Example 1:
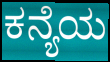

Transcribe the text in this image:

ಕನ್ಯೆಯ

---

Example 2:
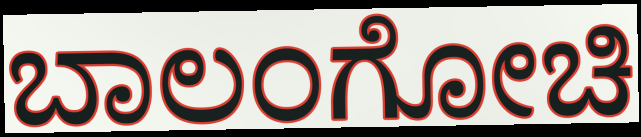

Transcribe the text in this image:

ಬಾಲಂಗೋಚಿ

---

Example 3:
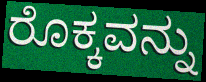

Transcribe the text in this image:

ರೊಕ್ಕವನ್ನು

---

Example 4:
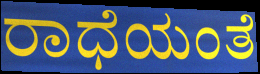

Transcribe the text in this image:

ರಾಧೆಯಂತೆ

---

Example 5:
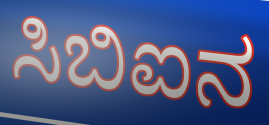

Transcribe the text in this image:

ಸಿಬಿಐನ